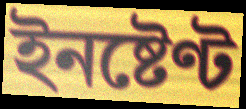
ইনষ্টেণ্ট